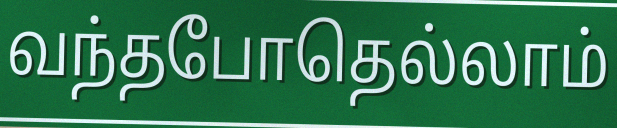
வந்தபோதெல்லாம்